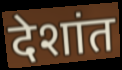
देशांत